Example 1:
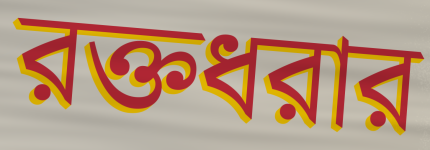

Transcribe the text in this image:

রক্তধরার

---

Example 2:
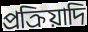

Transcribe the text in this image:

প্রক্রিয়াদি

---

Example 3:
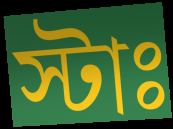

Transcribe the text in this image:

স্টাঃ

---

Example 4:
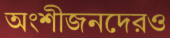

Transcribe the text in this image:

অংশীজনদেরও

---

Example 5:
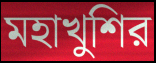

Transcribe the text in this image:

মহাখুশির